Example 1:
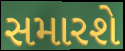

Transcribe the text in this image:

સમારશે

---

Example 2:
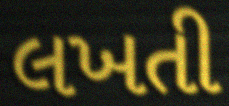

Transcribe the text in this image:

લખતી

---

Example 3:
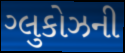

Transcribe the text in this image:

ગ્લુકોઝની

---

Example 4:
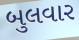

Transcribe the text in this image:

બુલવાર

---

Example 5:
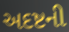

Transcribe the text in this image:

અદષ્ટની